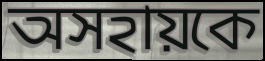
অসহায়কে